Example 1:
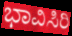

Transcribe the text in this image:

ಭಾವಿಸಿರಿ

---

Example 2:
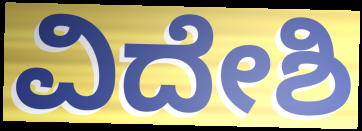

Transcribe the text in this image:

ವಿದೇಶಿ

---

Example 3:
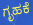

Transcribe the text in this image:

ಗೃಹಕೆ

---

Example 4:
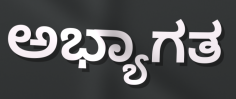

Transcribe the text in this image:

ಅಭ್ಯಾಗತ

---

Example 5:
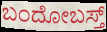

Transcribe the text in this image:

ಬಂದೋಬಸ್ತ್